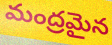
మంద్రమైన